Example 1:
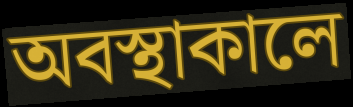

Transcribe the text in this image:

অবস্থাকালে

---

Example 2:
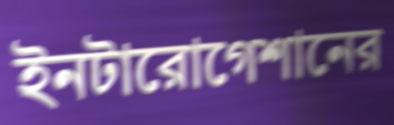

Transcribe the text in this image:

ইনটারোগেশানের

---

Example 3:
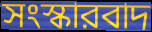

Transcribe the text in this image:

সংস্কারবাদ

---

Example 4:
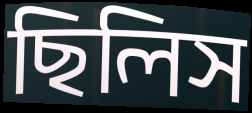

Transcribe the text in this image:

ছিলিস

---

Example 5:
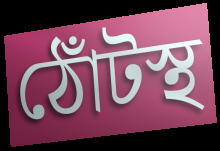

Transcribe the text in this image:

ঠোঁটস্থ